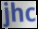
jhc